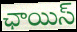
ఛాయిస్